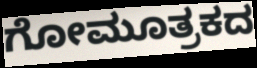
ಗೋಮೂತ್ರಕದ